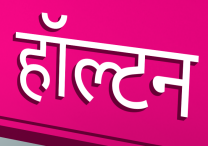
हॉल्टन